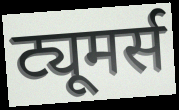
ट्यूमर्स